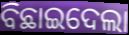
ବିଛାଇଦେଲା